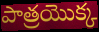
పాత్రయొక్క